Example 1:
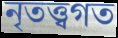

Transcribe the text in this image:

নৃতত্ত্বগত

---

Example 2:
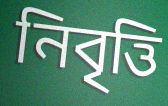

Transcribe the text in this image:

নিবৃত্তি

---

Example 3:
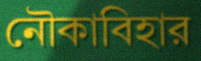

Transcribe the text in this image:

নৌকাবিহার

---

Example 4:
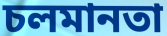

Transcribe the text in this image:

চলমানতা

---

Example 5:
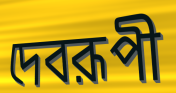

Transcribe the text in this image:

দেবরূপী